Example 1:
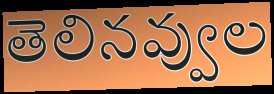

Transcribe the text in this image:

తెలినవ్వుల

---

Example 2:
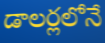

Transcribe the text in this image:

డాలర్లలోనే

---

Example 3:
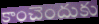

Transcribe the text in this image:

కాంచెందుకు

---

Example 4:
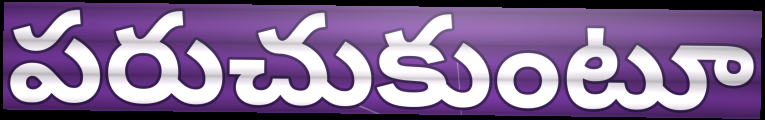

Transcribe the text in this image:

పరుచుకుంటూ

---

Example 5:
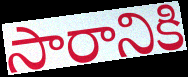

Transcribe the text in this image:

సారానికి